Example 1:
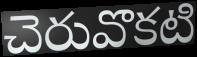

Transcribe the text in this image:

చెరువొకటి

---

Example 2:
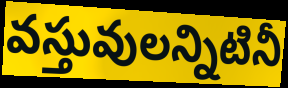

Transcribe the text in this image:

వస్తువులన్నిటినీ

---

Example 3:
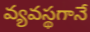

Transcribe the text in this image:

వ్యవస్థగానే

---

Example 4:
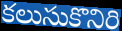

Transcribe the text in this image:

కలుసుకొనిరి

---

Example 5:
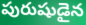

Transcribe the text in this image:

పురుషుడైన